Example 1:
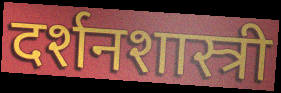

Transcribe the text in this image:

दर्शनशास्त्री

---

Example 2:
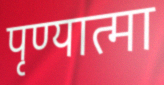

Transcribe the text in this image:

पृण्यात्मा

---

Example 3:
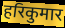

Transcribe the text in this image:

हरिकुमार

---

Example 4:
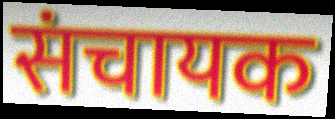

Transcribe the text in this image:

संचायक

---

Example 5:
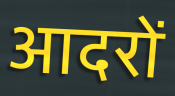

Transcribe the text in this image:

आदरों